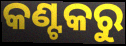
କଣ୍ଟକରୁ